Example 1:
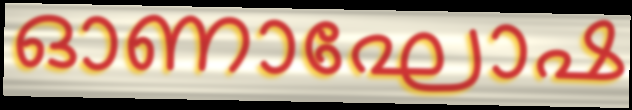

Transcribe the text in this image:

ഓണാഘോഷ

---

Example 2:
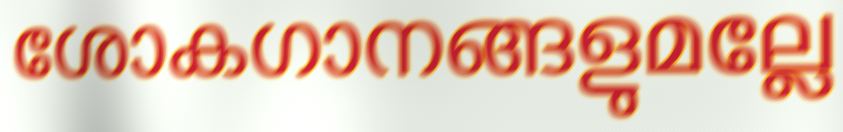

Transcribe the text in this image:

ശോകഗാനങ്ങളുമല്ലേ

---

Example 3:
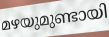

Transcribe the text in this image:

മഴയുമുണ്ടായി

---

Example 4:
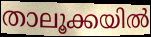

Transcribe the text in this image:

താലൂക്കയിൽ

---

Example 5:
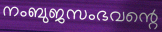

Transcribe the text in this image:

നംബുജസംഭവന്റെ